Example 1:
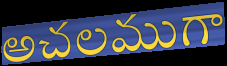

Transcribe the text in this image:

అచలముగా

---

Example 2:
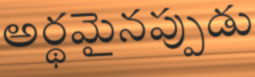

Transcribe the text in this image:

అర్థమైనప్పుడు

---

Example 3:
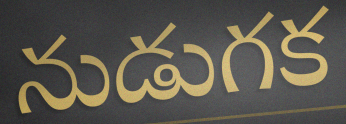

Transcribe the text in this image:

నుడుగక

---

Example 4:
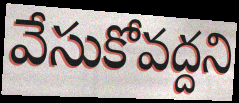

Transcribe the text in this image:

వేసుకోవద్దని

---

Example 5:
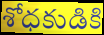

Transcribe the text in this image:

శోధకుడికి